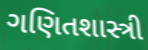
ગણિતશાસ્ત્રી